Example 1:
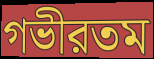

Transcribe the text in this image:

গভীরতম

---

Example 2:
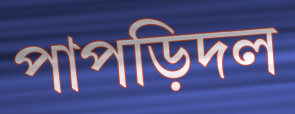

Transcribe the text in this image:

পাপড়িদল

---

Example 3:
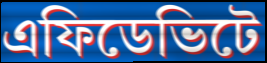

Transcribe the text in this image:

এফিডেভিটে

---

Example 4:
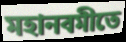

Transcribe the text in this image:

মহানবমীতে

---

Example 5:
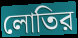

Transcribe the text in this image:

লোতির